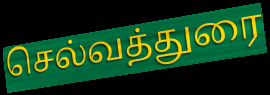
செல்வத்துரை